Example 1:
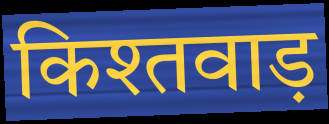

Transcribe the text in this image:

किश्तवाड़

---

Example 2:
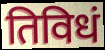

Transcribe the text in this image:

तिविधं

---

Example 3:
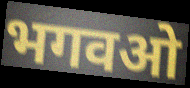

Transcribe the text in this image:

भगवओ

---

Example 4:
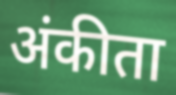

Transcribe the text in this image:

अंकीता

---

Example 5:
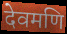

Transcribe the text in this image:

देवमणि